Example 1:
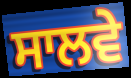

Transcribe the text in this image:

ਸਾਲਵੇ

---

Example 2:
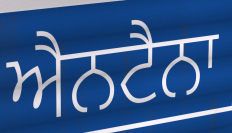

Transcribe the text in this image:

ਐਨਟੈਨਾ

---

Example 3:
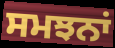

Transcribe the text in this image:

ਸਮਝਨਾਂ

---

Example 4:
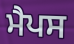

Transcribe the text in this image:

ਮੈਪਸ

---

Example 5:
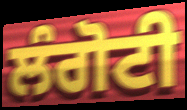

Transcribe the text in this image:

ਲੰਗੋਟੀ